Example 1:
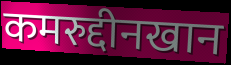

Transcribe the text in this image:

कमरुद्दीनखान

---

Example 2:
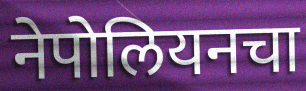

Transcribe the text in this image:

नेपोलियनचा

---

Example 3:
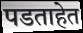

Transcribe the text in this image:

पडताहेत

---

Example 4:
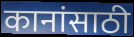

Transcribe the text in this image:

कानांसाठी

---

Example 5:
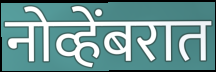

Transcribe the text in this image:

नोव्हेंबरात